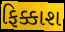
ફિક્કાશ